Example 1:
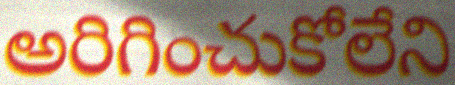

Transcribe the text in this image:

అరిగించుకోలేని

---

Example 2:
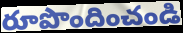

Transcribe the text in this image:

రూపొందించండి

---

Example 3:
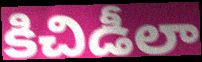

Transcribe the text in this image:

కిచిడీలా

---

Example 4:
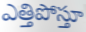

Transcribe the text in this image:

ఎత్తిపోస్తూ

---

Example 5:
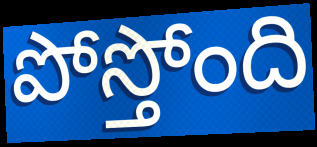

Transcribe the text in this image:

పోస్తోంది